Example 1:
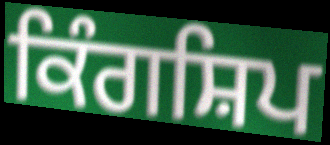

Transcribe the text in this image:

ਕਿੰਗਸ਼ਿਪ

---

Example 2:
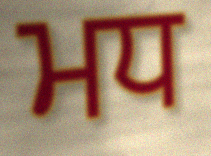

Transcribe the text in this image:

ਮਧ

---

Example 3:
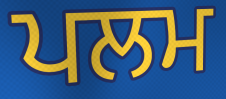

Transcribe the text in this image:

ਪਲਮ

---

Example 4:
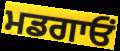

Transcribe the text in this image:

ਮਡਗਾਓਂ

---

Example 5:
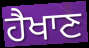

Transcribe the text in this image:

ਹੈਖਾਣ